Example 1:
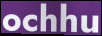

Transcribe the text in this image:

ochhu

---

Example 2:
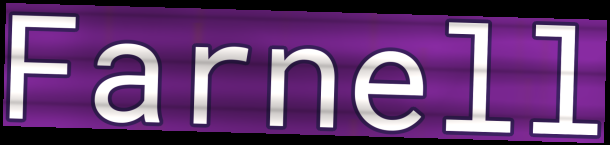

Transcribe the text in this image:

Farnell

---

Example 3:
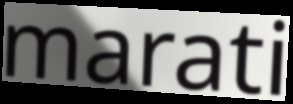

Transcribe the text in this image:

marati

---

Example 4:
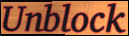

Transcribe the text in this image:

Unblock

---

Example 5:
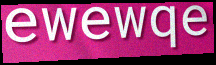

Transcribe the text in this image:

ewewqe